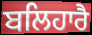
ਬਲਿਹਾਰੈ